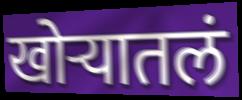
खोऱ्यातलं